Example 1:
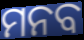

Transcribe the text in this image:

ମନବ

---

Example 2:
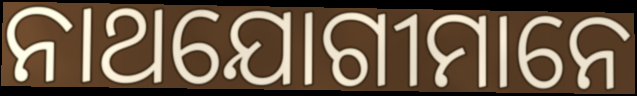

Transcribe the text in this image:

ନାଥଯୋଗୀମାନେ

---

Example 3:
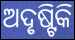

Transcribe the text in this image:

ଅଦୃଷ୍ଟିକି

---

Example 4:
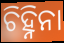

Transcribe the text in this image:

ଚିହ୍ନିନା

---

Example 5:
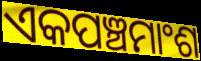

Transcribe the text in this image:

ଏକପଞ୍ଚମାଂଶ